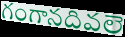
గంగానదివలె